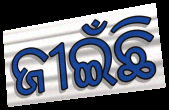
ଜୀଇଁଛି